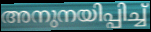
അനുനയിപ്പിച്ച്